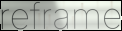
reframe